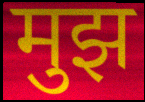
मुझ